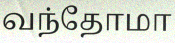
வந்தோமா